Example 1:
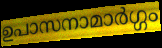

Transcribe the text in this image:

ഉപാസനാമാർഗ്ഗം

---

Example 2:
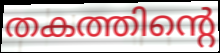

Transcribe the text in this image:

തകത്തിന്റെ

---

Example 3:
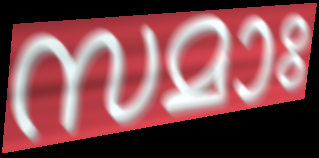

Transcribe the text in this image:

സമാഃ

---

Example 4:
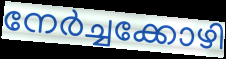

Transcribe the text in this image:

നേർച്ചക്കോഴി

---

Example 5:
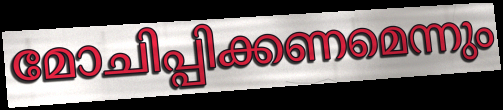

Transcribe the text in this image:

മോചിപ്പിക്കണമെന്നും